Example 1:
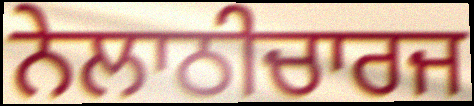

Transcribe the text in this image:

ਨੇਲਾਠੀਚਾਰਜ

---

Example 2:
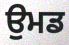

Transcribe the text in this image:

ਉਮਡ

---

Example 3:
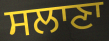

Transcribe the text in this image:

ਸਲਾਣਾ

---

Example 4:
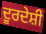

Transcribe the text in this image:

ਦੂਰਦੇਸ਼ੀ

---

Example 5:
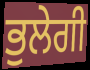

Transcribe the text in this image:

ਭੁਲੇਗੀ